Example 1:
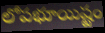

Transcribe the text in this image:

లోపభూయిష్టం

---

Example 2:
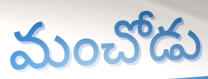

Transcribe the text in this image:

మంచోడు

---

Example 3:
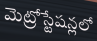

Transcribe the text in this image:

మెట్రోస్టేషన్లలో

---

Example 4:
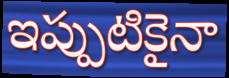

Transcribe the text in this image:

ఇప్పుటికైనా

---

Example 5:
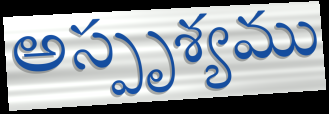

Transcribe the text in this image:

అస్పృశ్యము